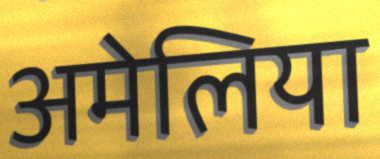
अमेलिया